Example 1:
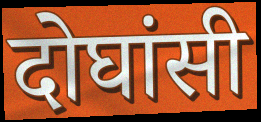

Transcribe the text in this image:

दोघांसी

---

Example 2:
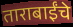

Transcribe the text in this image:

ताराबाईंचे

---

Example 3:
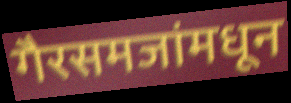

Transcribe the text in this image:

गैरसमजांमधून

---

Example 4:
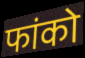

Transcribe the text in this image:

फांको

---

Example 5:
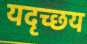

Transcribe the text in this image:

यदृच्छय